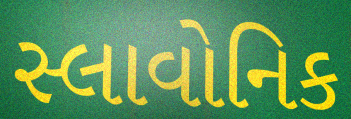
સ્લાવોનિક